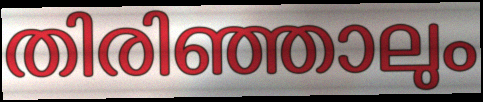
തിരിഞ്ഞാലും